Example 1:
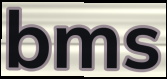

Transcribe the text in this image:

bms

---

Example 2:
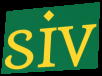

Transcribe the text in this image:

siv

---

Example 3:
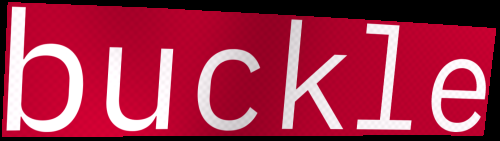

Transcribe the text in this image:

buckle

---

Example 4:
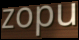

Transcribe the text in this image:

zopu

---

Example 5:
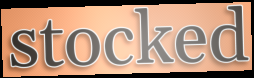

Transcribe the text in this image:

stocked